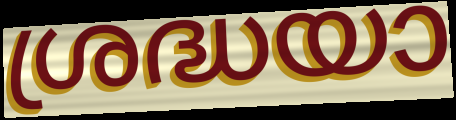
ശ്രദ്ധയാ